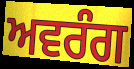
ਅਵਰੰਗ